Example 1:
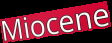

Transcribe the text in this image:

Miocene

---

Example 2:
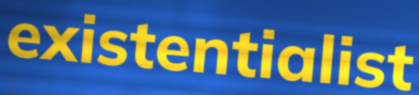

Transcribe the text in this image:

existentialist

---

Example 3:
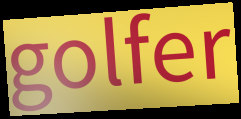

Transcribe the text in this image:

golfer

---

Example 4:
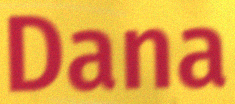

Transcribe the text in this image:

Dana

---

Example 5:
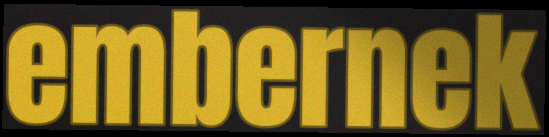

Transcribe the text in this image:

embernek